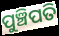
ପୁଞ୍ଚିପତି